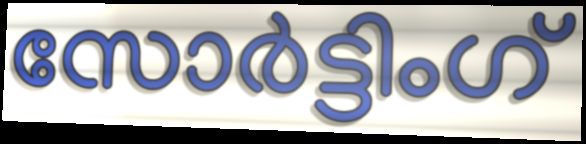
സോർട്ടിംഗ്